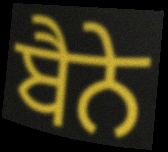
ਬੈਨੇ